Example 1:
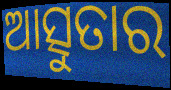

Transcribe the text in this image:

ଆତ୍ସୁତାର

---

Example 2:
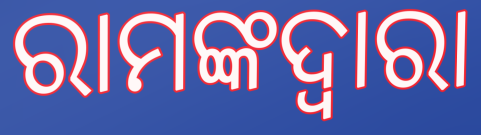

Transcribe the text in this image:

ରାମଙ୍କଦ୍ଵାରା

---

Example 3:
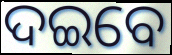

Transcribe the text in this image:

ଦଇବେ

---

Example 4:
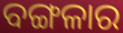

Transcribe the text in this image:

ବଙ୍ଗଳାର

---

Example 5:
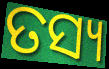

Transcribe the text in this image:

ତସ୍ୟ